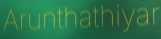
Arunthathiyar